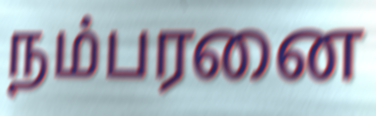
நம்பரனை